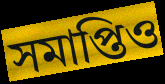
সমাপ্তিও